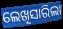
ଲେଖିସାରିଲା